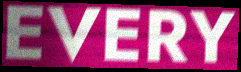
EVERY